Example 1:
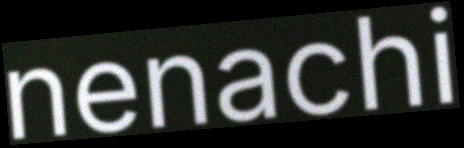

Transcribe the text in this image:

nenachi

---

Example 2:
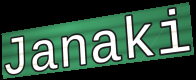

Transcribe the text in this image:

Janaki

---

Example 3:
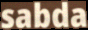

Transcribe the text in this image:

sabda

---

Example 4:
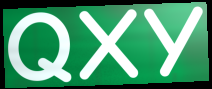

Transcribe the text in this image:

QXY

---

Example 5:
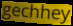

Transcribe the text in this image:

gechhey